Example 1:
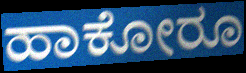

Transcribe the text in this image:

ಹಾಕೋರೂ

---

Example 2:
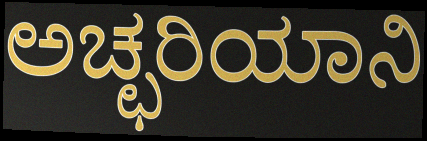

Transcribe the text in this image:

ಅಚ್ಛರಿಯಾನಿ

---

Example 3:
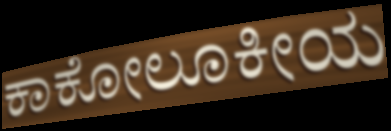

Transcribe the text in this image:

ಕಾಕೋಲೂಕೀಯ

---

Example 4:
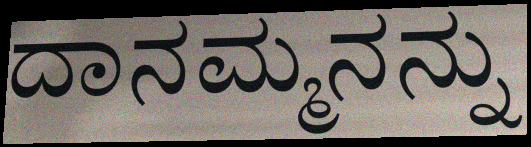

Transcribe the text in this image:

ದಾನಮ್ಮನನ್ನು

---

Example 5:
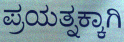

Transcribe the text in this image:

ಪ್ರಯತ್ನಕ್ಕಾಗಿ